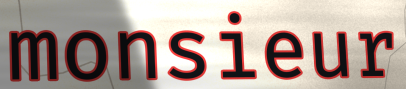
monsieur